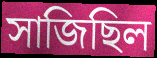
সাজিছিল